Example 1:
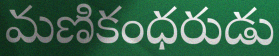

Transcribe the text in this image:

మణికంధరుడు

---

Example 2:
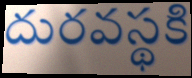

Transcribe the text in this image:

దురవస్థకి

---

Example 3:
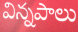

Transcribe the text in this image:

విన్నపాలు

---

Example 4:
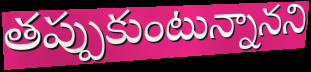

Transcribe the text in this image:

తప్పుకుంటున్నానని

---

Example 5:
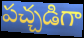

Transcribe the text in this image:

పచ్చడిగా